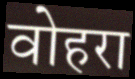
वोहरा